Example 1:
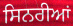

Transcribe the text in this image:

ਸਿਨਰੀਆਂ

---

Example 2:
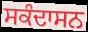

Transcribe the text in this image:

ਸਕੰਦਾਸਨ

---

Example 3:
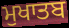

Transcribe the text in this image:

ਮੁਖਾਤਬ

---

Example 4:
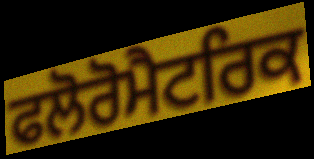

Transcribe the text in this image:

ਫਲੋਰੋਮੈਟਰਿਕ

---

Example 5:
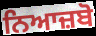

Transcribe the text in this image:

ਨਿਆਜ਼ਬੋ